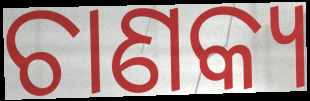
ଚାଣକ୍ଯ